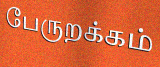
பேருறக்கம்